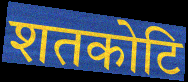
शतकोटि